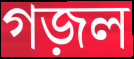
গজ়ল